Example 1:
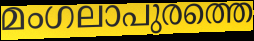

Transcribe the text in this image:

മംഗലാപുരത്തെ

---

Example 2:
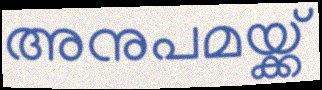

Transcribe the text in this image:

അനുപമയ്ക്ക്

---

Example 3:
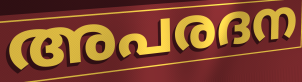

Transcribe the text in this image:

അപരദന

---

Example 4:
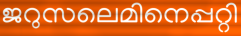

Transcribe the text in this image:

ജറുസലെമിനെപ്പറ്റി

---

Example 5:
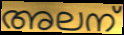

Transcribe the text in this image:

അലന്